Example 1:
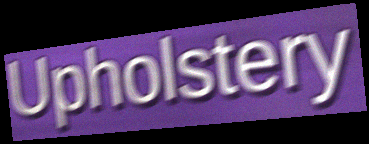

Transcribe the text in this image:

Upholstery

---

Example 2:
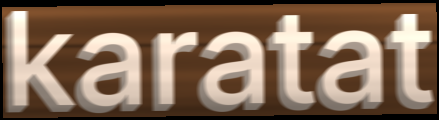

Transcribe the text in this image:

karatat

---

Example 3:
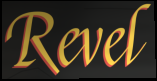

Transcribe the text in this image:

Revel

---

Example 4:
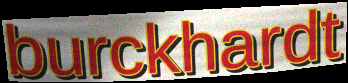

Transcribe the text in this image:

burckhardt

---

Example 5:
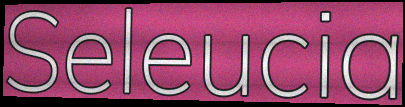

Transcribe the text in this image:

Seleucia